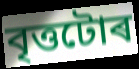
বৃত্তটোৰ